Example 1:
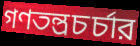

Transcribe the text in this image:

গণতন্ত্রচর্চার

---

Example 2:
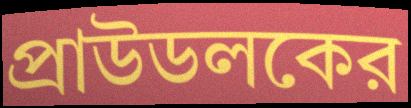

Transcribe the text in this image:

প্রাউডলকের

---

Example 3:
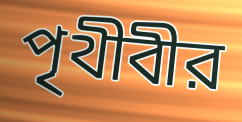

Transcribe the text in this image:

পৃথীবীর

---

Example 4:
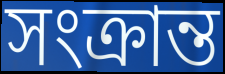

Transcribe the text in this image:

সংক্রান্ত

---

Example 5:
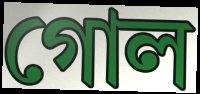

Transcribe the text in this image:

গোল